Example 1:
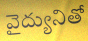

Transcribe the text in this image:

వైద్యునితో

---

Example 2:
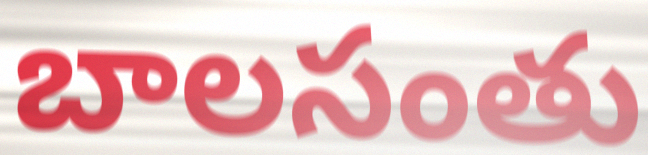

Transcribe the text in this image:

బాలసంతు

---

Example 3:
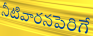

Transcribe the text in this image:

నీటివారనపెరిగే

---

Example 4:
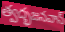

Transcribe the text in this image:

త్వద్భజనవాన్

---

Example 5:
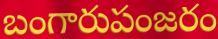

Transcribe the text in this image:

బంగారుపంజరం